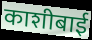
काशीबाई